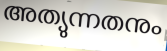
അത്യുന്നതനും